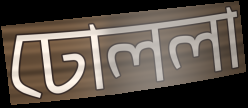
ঢোললা